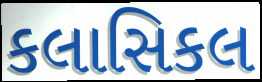
કલાસિકલ